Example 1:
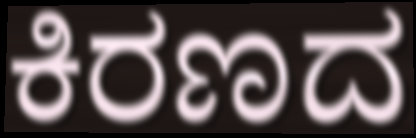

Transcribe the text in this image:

ಕಿರಣದ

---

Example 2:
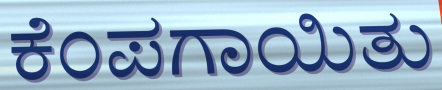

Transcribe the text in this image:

ಕೆಂಪಗಾಯಿತು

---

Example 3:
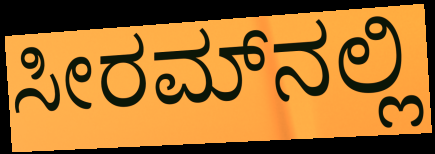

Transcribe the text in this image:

ಸೀರಮ್‌ನಲ್ಲಿ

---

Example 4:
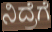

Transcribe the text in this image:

ನಿದ್ರೆಗೆ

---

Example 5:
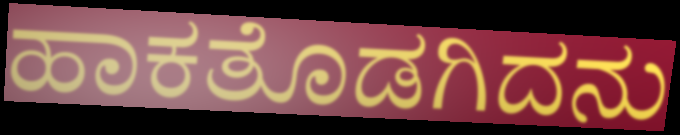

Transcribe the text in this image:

ಹಾಕತೊಡಗಿದನು